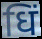
धिं